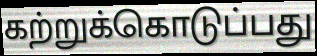
கற்றுக்கொடுப்பது